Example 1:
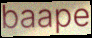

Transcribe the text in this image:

baape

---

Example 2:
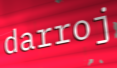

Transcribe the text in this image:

darroj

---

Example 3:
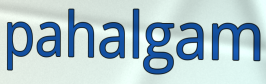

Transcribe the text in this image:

pahalgam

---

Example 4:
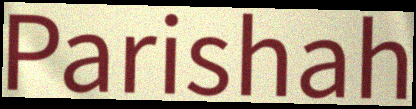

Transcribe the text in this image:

Parishah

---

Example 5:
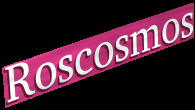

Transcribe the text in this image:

Roscosmos